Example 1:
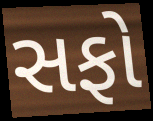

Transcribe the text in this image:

સફો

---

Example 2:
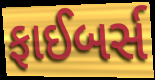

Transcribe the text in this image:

ફાઈબર્સ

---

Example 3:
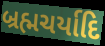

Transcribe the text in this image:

બ્રહ્મચર્યાદિ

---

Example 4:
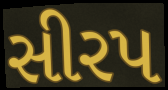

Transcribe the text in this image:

સીરપ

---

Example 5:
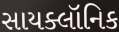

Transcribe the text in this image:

સાયક્લૉનિક